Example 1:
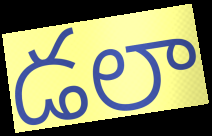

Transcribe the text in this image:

డలా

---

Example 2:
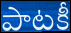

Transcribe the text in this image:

పాటకీ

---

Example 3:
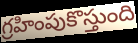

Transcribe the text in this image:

గ్రహింపుకొస్తుంది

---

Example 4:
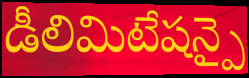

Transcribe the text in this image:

డీలిమిటేషన్పై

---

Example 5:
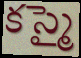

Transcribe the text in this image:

కస్మై